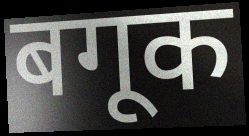
बगूक